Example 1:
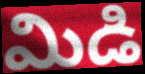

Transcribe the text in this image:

మిడి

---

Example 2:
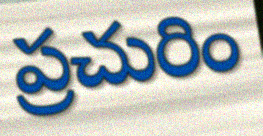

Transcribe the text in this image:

ప్రచురిం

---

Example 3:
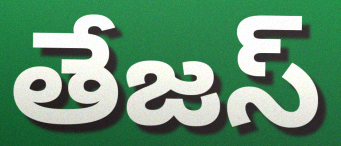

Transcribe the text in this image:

తేజస్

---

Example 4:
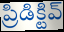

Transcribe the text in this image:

ప్రిడిక్టివ్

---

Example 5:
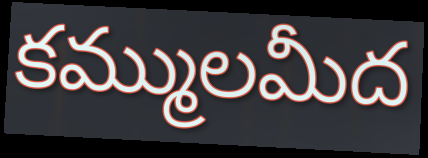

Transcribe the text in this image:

కమ్ములమీద